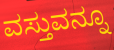
ವಸ್ತುವನ್ನೂ